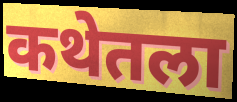
कथेतला